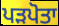
ਪੜਪੋਤਾ